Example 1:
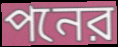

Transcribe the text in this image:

পনের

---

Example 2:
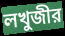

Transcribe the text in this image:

লখুজীর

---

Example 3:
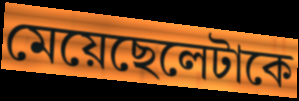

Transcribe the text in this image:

মেয়েছেলেটাকে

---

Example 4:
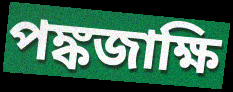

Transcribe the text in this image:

পঙ্কজাক্ষি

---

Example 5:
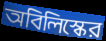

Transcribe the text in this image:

অবিলিস্কের